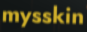
mysskin